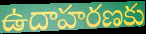
ఉదాహరణకు